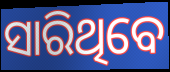
ସାରିଥିବେ